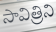
సావిత్రిని